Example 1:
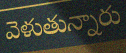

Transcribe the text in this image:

వెళుతున్నారు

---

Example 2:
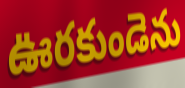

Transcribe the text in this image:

ఊరకుండెను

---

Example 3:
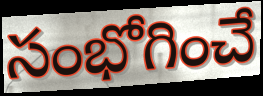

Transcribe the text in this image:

సంభోగించే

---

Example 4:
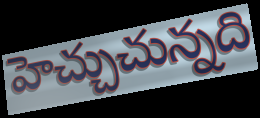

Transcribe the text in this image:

హెచ్చుచున్నది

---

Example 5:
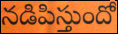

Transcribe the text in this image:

నడిపిస్తుందో